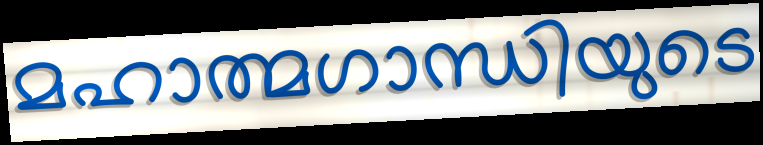
മഹാത്മഗാന്ധിയുടെ